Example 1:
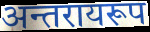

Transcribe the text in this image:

अन्तरायरूप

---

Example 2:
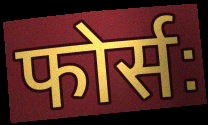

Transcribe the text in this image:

फोर्सः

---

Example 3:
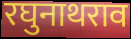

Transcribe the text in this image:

रघुनाथराव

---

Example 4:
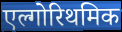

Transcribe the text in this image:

एल्गोरिथमिक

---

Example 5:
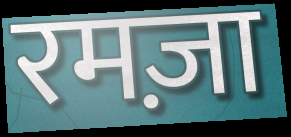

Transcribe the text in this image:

रमज़ा